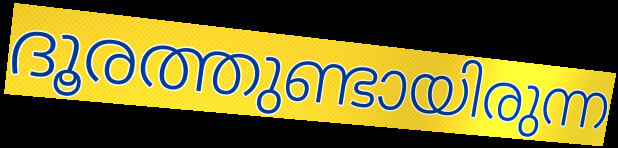
ദൂരത്തുണ്ടായിരുന്ന